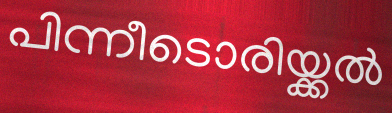
പിന്നീടൊരിയ്ക്കൽ